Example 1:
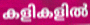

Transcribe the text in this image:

കളികളിൽ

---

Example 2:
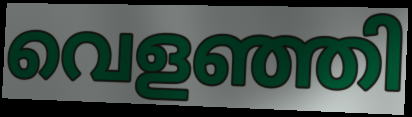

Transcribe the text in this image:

വെളഞ്ഞി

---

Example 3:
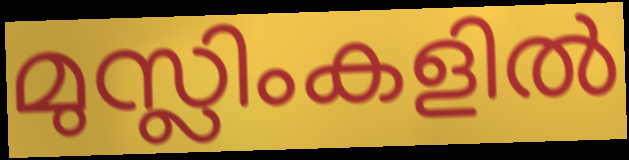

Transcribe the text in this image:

മുസ്ലിംകളിൽ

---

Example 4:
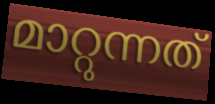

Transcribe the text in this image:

മാറ്റുന്നത്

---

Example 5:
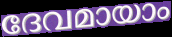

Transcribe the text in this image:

ദേവമായാം